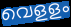
വെളളം